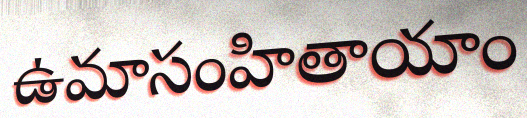
ఉమాసంహితాయాం